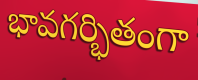
భావగర్భితంగా